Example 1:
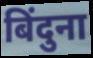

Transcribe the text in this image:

बिंदुना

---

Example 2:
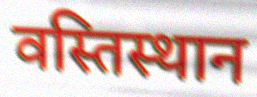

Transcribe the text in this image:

वस्तिस्थान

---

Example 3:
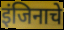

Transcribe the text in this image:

इंजिनाचे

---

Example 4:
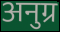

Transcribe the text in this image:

अनुग्र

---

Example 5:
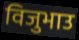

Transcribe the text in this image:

विजुभाउ